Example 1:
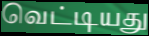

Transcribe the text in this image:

வெட்டியது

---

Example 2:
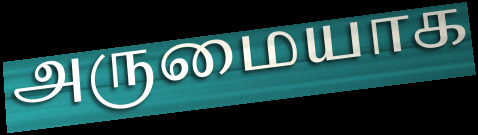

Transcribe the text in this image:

அருமையாக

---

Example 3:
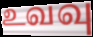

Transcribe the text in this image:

உவவு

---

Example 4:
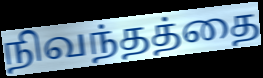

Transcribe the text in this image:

நிவந்தத்தை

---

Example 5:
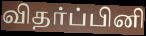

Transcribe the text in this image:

விதர்ப்பினி